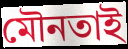
মৌনতাই